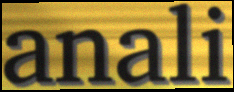
anali